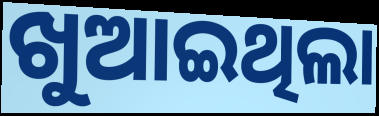
ଖୁଆଇଥିଲା